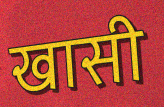
खासी